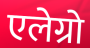
एलेग्रो